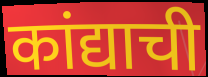
कांद्याची